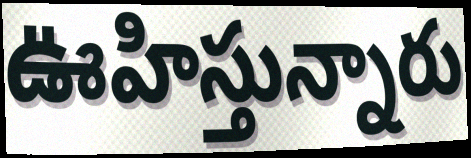
ఊహిస్తున్నారు